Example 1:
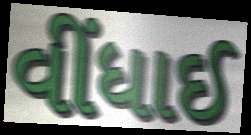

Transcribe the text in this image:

વીંધાઈ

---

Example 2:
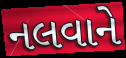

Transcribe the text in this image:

નલવાને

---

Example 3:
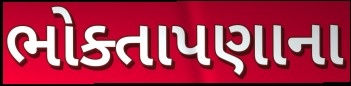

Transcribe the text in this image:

ભોક્તાપણાના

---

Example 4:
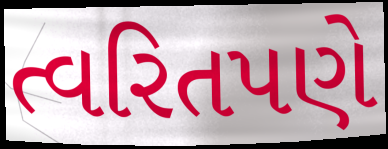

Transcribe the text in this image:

ત્વરિતપણે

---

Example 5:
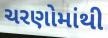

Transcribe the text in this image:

ચરણોમાંથી